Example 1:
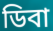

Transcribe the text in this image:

ডিবা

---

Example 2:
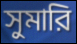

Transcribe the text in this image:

সুমারি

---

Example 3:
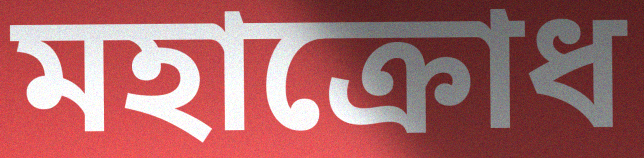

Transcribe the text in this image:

মহাক্রোধ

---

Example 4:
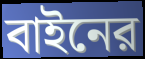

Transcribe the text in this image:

বাইনের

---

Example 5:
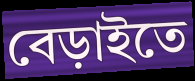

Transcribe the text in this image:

বেড়াইতে